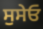
ਸੁਸੇਓ